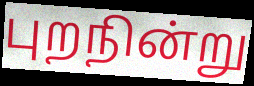
புறநின்று